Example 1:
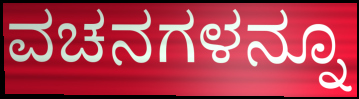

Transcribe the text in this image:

ವಚನಗಳನ್ನೂ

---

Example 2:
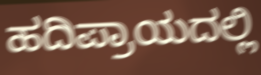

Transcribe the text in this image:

ಹದಿಪ್ರಾಯದಲ್ಲಿ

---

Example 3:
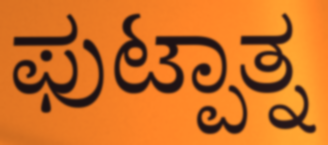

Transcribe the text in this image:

ಫುಟ್ಪಾತ್ನ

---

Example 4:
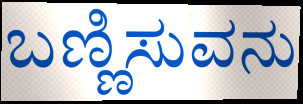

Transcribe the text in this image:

ಬಣ್ಣಿಸುವನು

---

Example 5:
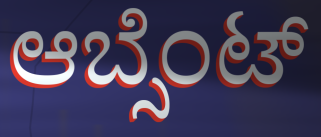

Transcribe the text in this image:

ಆಬ್ಸೆಂಟ್